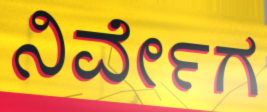
ನಿರ್ವೇಗ